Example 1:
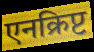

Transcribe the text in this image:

एनक्रिप्ट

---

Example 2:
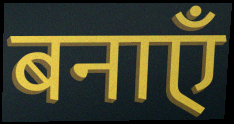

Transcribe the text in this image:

बनाएँ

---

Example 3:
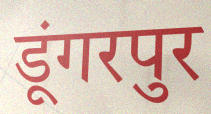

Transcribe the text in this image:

डूंगरपुर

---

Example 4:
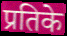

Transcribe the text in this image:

प्रतिके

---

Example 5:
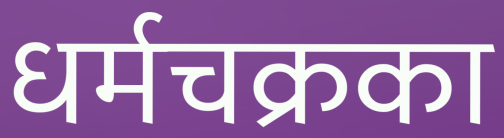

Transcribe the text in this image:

धर्मचक्रका